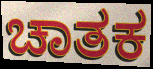
ಚಾತಕ